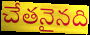
చేతనైనది